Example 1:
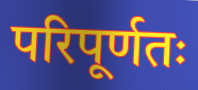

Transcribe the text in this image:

परिपूर्णतः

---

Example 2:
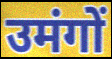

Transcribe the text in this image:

उमंगों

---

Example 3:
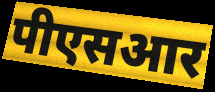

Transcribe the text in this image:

पीएसआर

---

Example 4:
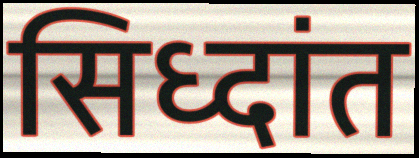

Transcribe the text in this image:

सिध्दांत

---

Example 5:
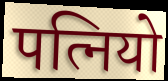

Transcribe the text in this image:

पत्नियो